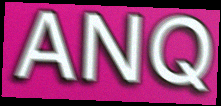
ANQ